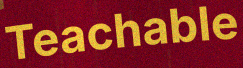
Teachable